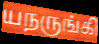
யநருங்கி